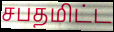
சபதமிட்ட